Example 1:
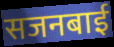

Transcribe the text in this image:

सजनबाई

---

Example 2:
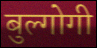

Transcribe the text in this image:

बुल्गोगी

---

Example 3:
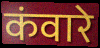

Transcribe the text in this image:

कंवारे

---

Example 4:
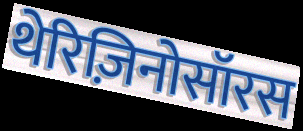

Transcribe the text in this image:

थेरिज़िनोसॉरस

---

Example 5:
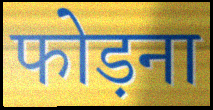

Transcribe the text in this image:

फोड़ना